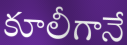
కూలీగానే